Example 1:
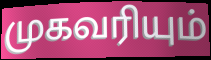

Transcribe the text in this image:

முகவரியும்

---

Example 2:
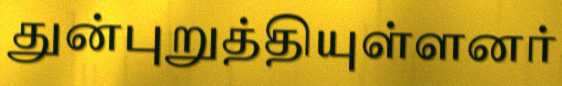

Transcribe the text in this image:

துன்புறுத்தியுள்ளனர்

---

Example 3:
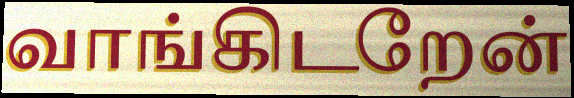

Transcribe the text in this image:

வாங்கிடறேன்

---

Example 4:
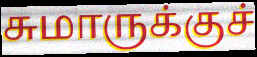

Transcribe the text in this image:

சுமாருக்குச்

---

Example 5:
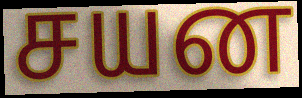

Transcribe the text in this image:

சயன